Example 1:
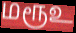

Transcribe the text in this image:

மரூஉ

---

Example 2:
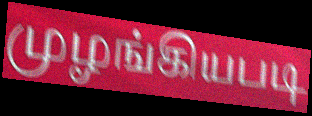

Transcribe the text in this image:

முழங்கியபடி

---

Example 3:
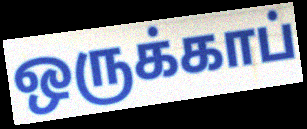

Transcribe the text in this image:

ஒருக்காப்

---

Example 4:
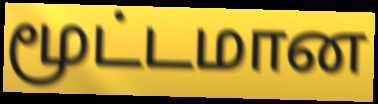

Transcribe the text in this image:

மூட்டமான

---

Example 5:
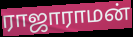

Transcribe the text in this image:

ராஜாராமன்